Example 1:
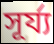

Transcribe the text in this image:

সূর্য্য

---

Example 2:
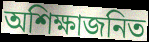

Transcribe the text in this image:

অশিক্ষাজনিত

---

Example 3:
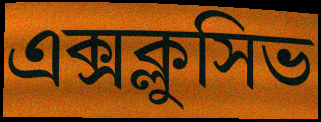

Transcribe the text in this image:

এক্সক্লুসিভ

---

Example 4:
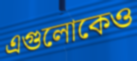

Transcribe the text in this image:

এগুলোকেও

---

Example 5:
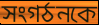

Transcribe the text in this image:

সংগঠনকে